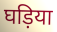
घड़िया